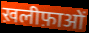
ख़लीफ़ाओं